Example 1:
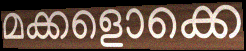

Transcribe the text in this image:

മക്കളൊക്കെ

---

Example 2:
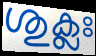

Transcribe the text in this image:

ശുക്ലഃ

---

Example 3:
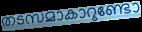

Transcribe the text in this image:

തടസമാകാറുണ്ടോ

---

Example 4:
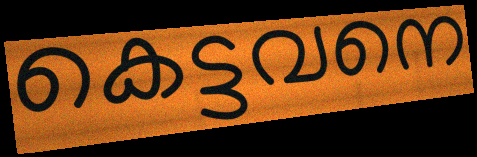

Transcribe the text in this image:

കെട്ടവനെ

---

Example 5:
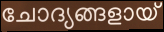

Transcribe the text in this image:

ചോദ്യങ്ങളായ്